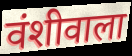
वंशीवाला